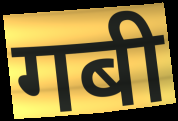
गबी